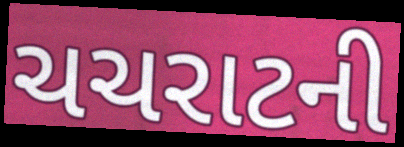
ચચરાટની